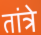
तांत्रे